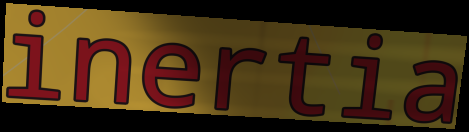
inertia